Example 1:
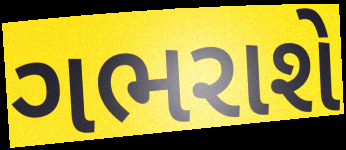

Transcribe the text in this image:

ગભરાશે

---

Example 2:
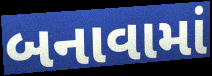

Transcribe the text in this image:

બનાવામાં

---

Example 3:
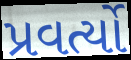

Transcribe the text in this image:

પ્રવર્ત્યો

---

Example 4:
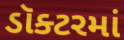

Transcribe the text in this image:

ડૉક્ટરમાં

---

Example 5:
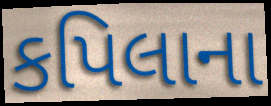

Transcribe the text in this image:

કપિલાના